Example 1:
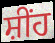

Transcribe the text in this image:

ਸ਼ੀਂਹ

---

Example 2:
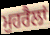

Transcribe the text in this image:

ਮੁਹਰੈਲਾਂ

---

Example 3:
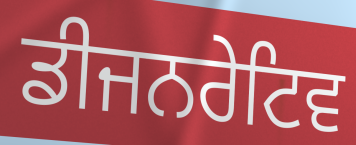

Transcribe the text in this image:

ਡੀਜਨਰੇਟਿਵ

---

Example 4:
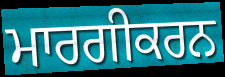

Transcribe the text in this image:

ਮਾਰਗੀਕਰਨ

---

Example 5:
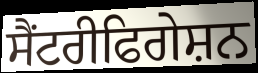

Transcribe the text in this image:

ਸੈਂਟਰੀਫਿਗੇਸ਼ਨ